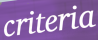
criteria